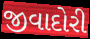
જીવાદોરી